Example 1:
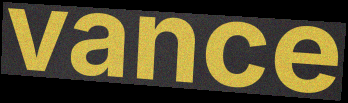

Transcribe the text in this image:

vance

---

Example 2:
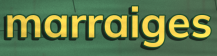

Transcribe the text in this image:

marraiges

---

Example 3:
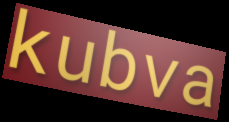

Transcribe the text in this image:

kubva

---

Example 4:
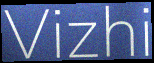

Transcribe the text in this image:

Vizhi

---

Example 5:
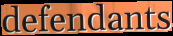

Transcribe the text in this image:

defendants